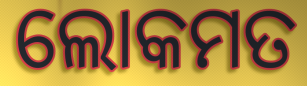
ଲୋକମତ